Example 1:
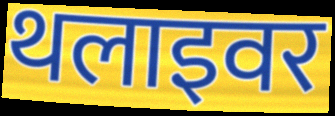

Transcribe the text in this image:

थलाइवर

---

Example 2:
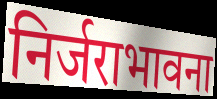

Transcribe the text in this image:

निर्जराभावना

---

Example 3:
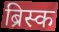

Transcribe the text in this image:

ब्रिस्क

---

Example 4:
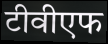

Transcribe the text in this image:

टीवीएफ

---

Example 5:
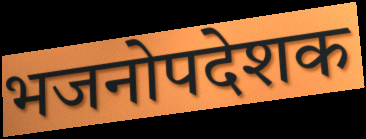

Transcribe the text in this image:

भजनोपदेशक